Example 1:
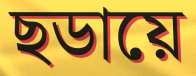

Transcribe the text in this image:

ছডায়ে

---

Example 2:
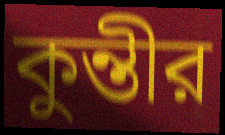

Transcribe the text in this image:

কুন্তীর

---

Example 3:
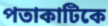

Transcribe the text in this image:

পতাকাটিকে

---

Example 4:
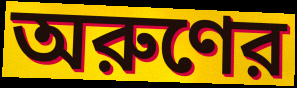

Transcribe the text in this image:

অরুণের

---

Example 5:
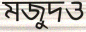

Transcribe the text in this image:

মজুদও